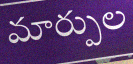
మార్పుల